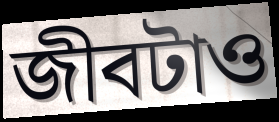
জীবটাও